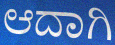
ಆದಾಗಿ